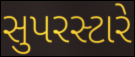
સુપરસ્ટારે